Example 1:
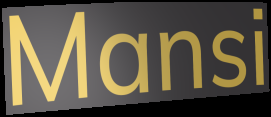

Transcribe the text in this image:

Mansi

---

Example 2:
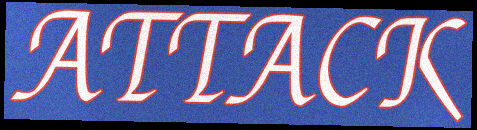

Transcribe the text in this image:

ATTACK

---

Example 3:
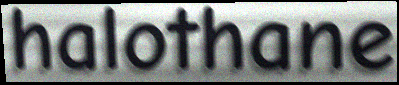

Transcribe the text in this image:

halothane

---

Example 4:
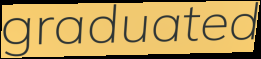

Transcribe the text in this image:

graduated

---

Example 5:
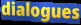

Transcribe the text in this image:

dialogues